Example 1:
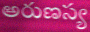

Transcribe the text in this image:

అరుణస్య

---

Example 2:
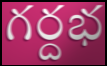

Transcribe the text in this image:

గర్దభ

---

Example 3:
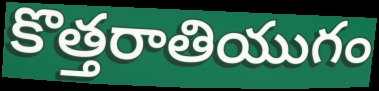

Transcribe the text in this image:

కొత్తరాతియుగం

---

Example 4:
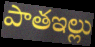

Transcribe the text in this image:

పాతఇల్లు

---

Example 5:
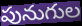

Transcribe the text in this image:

పునుగుల